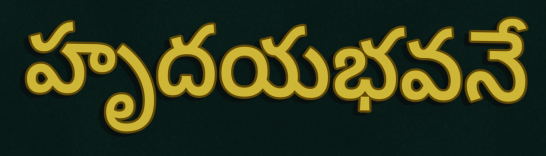
హృదయభవనే